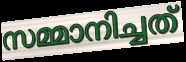
സമ്മാനിച്ചത്